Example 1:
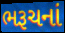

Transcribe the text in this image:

ભરૂચનાં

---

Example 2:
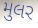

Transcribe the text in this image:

મુલર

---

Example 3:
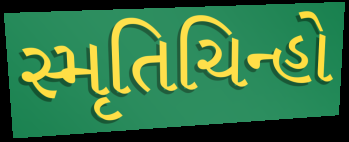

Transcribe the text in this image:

સ્મૃતિચિન્હો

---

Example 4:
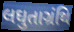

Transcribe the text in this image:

લઘુતાગ્રંથિ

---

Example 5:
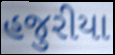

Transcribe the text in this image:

હજુરીયા